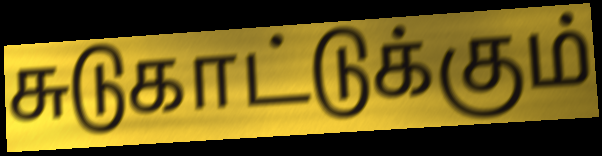
சுடுகாட்டுக்கும்